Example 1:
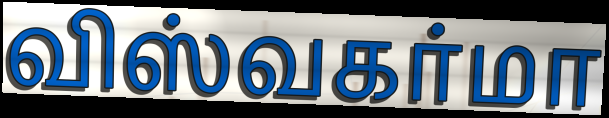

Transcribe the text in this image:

விஸ்வகர்மா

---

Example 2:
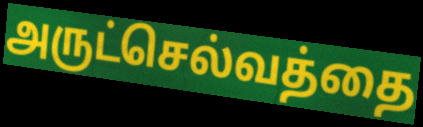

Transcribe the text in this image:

அருட்செல்வத்தை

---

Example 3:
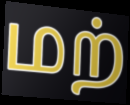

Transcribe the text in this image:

மற்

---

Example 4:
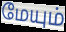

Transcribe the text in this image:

மேயும்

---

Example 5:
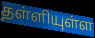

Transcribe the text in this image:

தள்ளியுள்ள